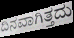
ದಿನವಾಗಿತ್ತದು